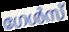
ഗേൾസ്